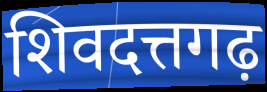
शिवदत्तगढ़